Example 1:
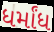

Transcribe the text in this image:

ધર્માંધ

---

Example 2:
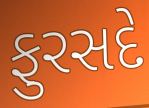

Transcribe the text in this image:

ફુરસદે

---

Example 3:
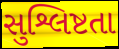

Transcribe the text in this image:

સુશ્લિષ્ટતા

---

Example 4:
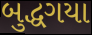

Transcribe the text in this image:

બુદ્ધગયા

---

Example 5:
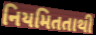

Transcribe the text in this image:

નિયમિતતાથી